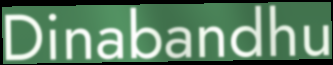
Dinabandhu